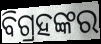
ବିଗ୍ରହଙ୍କର